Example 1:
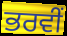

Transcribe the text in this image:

ਭਰਵੀਂ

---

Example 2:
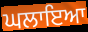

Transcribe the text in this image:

ਘਲਾਇਆ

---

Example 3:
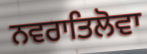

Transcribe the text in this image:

ਨਵਰਾਤਿਲੋਵਾ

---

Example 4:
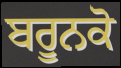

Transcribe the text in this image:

ਬਰੂਨਕੋ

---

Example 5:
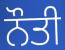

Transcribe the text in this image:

ਨੌਤੀ